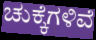
ಚುಕ್ಕೆಗಳಿವೆ